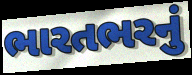
ભારતભરનું